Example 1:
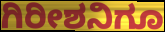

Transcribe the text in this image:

ಗಿರೀಶನಿಗೂ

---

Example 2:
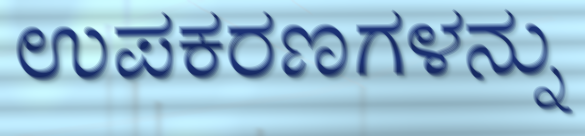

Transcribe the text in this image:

ಉಪಕರಣಗಳನ್ನು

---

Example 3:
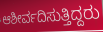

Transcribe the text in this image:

ಆಶೀರ್ವದಿಸುತ್ತಿದ್ದರು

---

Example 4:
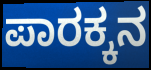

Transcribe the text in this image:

ಪಾರಕ್ಕನ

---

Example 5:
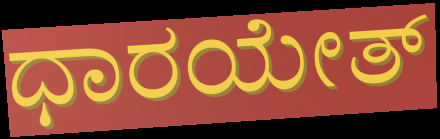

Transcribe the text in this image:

ಧಾರಯೇತ್